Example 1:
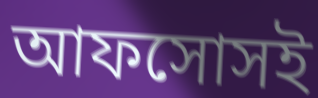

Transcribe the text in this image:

আফসোসই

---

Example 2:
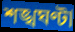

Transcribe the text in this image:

শঙ্খঘণ্টা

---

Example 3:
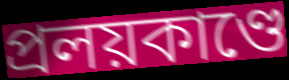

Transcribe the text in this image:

প্রলয়কাণ্ডে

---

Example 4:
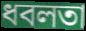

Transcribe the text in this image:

ধবলতা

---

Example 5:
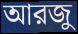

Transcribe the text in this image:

আরজু